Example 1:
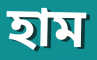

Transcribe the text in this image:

হাম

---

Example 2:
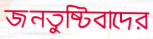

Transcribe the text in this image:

জনতুষ্টিবাদের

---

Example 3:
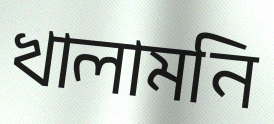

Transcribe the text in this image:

খালামনি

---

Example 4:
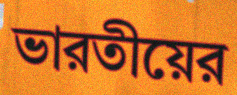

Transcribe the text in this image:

ভারতীয়ের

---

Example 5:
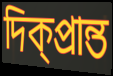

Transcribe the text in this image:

দিক্‌প্রান্ত